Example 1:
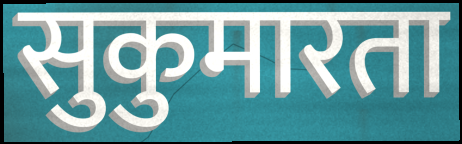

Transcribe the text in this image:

सुकुमारता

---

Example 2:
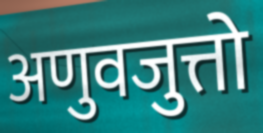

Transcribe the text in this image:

अणुवजुत्तो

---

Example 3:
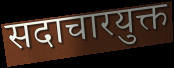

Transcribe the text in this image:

सदाचारयुक्त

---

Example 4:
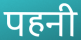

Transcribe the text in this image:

पहनी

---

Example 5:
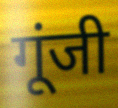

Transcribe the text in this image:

गूंजी